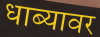
धाब्यावर